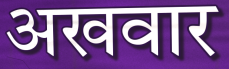
अखवार